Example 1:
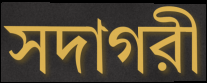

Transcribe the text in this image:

সদাগরী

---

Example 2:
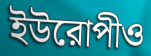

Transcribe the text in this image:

ইউরোপীও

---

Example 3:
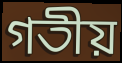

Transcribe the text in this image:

গতীয়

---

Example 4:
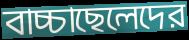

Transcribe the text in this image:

বাচ্চাছেলেদের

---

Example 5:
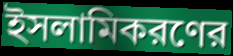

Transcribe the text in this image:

ইসলামিকরণের